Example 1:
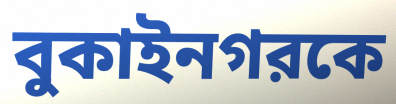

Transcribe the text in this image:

বুকাইনগরকে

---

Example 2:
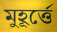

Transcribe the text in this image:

মুহূর্ত্তে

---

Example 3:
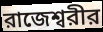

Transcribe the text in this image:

রাজেশ্বরীর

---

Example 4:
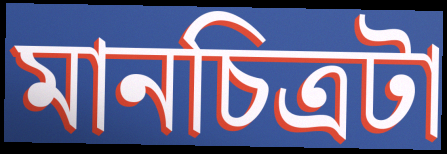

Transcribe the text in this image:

মানচিত্রটা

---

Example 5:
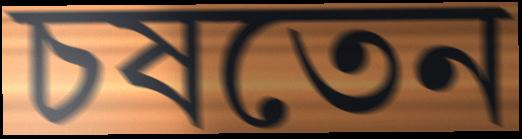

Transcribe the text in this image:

চষতেন